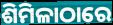
ଶିମିଳାଠାରେ